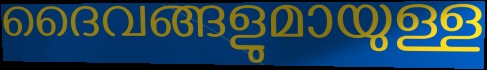
ദൈവങ്ങളുമായുള്ള